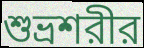
শুভ্রশরীর